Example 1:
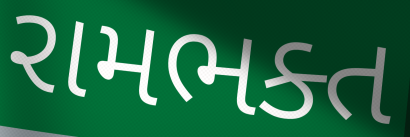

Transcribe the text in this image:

રામભક્ત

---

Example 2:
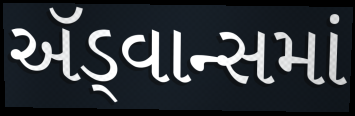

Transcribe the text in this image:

ઍડ્વાન્સમાં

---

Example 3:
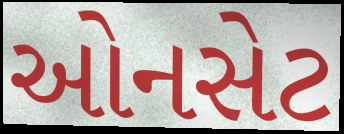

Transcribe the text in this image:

ઓનસેટ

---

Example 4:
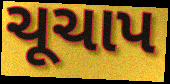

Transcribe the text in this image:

ચૂચાપ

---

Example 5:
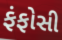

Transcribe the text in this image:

ફંફોસી